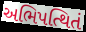
અભિપત્થિતં